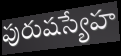
పురుషస్యేహ